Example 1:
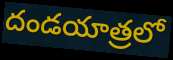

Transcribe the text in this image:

దండయాత్రలో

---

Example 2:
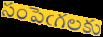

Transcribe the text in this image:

సంపెఁగలకు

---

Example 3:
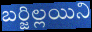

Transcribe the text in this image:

బర్జిల్లయిని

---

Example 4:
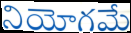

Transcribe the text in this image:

నియోగమే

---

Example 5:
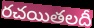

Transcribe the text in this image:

రచయితలదీ